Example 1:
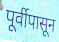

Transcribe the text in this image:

पूर्वीपासून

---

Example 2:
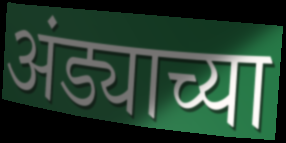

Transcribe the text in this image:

अंड्याच्या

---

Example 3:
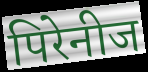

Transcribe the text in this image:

पिरेनीज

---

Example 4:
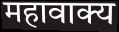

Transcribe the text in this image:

महावाक्य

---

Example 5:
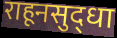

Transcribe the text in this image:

राहूनसुद्धा